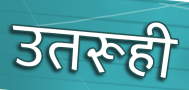
उतरूही